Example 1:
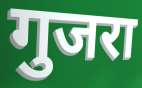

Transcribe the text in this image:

गुजरा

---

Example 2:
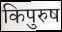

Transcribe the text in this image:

किपुरुष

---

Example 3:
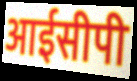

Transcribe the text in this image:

आईसीपी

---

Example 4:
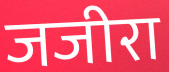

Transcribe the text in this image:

जजीरा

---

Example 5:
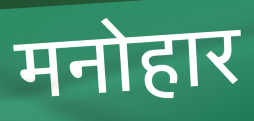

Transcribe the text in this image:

मनोहार